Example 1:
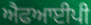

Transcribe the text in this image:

ਐਫਆਈਪੀ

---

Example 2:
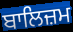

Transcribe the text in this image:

ਬਾਲਿਜ਼ਮ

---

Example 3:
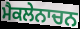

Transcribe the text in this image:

ਮੈਕਲੇਨਾਚਨ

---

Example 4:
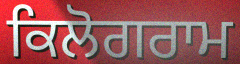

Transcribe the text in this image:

ਕਿਲੋਗਰਾਮ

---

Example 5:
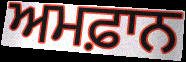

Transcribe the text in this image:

ਅਮਫ਼ਾਨ